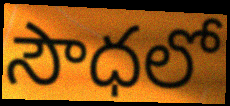
సౌధలో